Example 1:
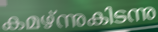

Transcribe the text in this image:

കമഴ്ന്നുകിടന്നു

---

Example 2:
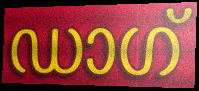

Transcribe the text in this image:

ഡാഗ്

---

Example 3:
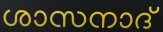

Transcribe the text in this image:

ശാസനാദ്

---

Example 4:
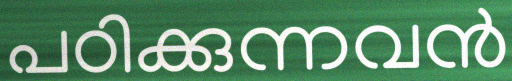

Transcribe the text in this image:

പഠിക്കുന്നവൻ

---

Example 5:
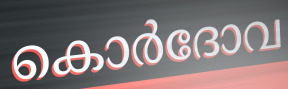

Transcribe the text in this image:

കൊർദോവ